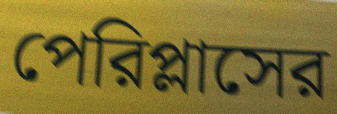
পেরিপ্লাসের